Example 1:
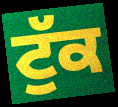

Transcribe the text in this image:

ਟੁੱਕ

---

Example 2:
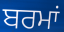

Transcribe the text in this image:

ਬਰਮਾਂ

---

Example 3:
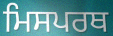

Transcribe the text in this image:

ਮਿਸਪਰਥ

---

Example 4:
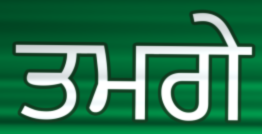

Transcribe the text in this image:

ਤਮਗੇ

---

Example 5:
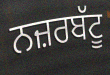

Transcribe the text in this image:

ਨਜ਼ਰਬੱਟੂ